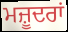
ਮਜ਼ੂਦਰਾਂ